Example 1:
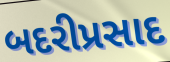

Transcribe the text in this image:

બદરીપ્રસાદ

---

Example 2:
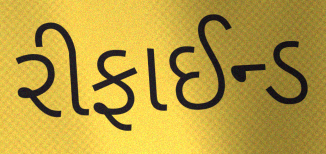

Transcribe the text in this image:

રીફાઈન્ડ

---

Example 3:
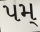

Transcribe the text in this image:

પમ્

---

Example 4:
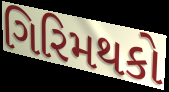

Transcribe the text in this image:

ગિરિમથકો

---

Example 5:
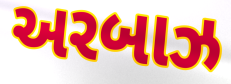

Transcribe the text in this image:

અરબાઝ